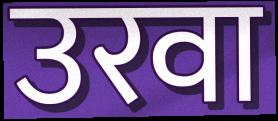
उरवा